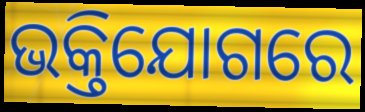
ଭକ୍ତିଯୋଗରେ